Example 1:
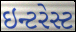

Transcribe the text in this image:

ઇન્ટરેસ્ટ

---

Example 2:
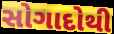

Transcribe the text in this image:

સોગાદોથી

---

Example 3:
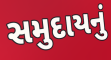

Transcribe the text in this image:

સમુદાયનું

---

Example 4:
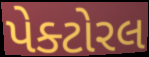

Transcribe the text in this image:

પેક્ટોરલ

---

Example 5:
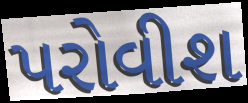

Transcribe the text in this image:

પરોવીશ